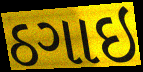
ઠગાઇ